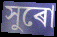
সুৰো